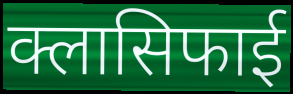
क्लासिफाई